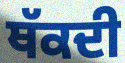
ਥੱਕਦੀ